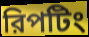
রিপটিং